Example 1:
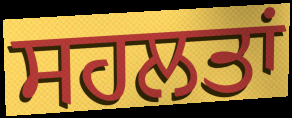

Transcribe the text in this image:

ਸਹਲਤਾਂ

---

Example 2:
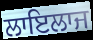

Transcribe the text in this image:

ਲਾਇਲਾਜ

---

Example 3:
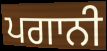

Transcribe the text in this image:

ਪਗਾਨੀ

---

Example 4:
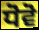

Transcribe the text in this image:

ਧੋਵੋ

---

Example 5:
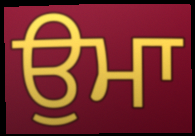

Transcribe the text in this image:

ਉਮਾ